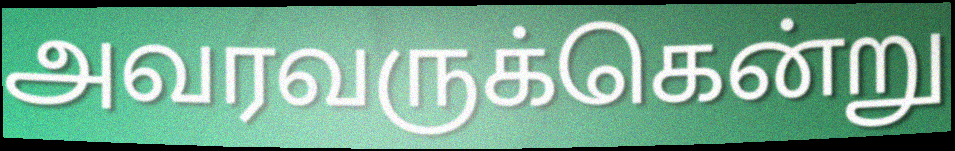
அவரவருக்கென்று